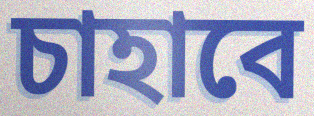
চাহাবে